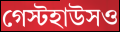
গেস্টহাউসও